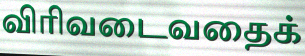
விரிவடைவதைக்